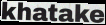
khatake